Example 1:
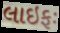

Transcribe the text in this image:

લાઇફઃ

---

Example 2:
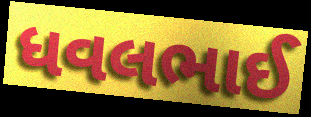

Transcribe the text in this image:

ધવલભાઈ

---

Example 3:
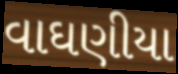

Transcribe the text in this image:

વાઘણીયા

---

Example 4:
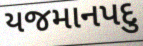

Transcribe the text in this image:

યજમાનપદુ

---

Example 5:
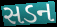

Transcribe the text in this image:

સડન